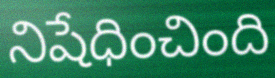
నిషేధించింది